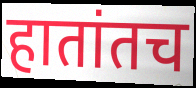
हातांतच